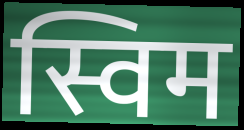
स्विम